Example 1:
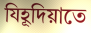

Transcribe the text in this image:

যিহূদিয়াতে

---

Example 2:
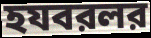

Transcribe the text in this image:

হযবরলর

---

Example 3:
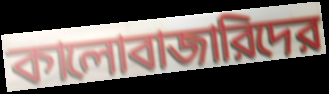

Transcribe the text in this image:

কালোবাজারিদের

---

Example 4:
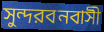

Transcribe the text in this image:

সুন্দরবনবাসী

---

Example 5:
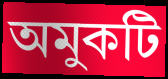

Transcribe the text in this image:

অমুকটি